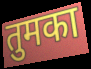
तुमका